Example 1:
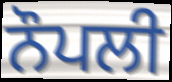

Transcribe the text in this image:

ਨੌਪਲੀ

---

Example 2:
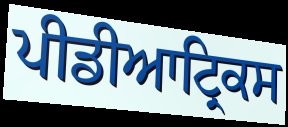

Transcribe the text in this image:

ਪੀਡੀਆਟ੍ਰਿਕਸ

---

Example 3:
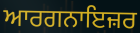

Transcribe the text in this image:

ਆਰਗਨਾਇਜ਼ਰ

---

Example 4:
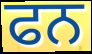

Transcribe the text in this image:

ਫਨ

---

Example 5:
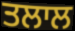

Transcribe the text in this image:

ਤਲਾਲ